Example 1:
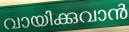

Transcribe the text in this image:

വായിക്കുവാൻ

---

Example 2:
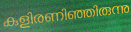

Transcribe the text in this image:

കുളിരണിഞ്ഞിരുന്നു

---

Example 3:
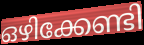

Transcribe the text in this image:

ഒഴിക്കേണ്ടി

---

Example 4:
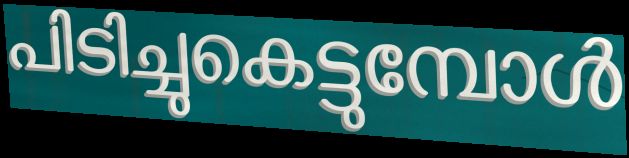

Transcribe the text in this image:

പിടിച്ചുകെട്ടുമ്പോൾ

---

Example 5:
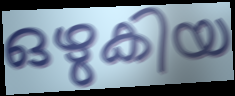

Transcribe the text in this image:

ഒഴുകിയ